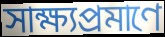
সাক্ষ্যপ্রমাণে